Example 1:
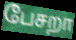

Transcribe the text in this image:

பேசறா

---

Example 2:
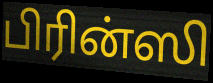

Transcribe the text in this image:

பிரின்ஸி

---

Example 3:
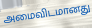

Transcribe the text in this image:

அமைவிடமானது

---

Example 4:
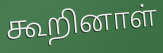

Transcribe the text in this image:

கூறினாள்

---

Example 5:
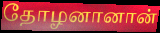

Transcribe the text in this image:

தோழனானான்